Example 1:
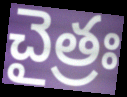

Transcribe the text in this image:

చైత్రః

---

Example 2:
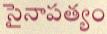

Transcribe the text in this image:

సైనాపత్యం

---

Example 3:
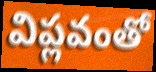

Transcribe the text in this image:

విప్లవంతో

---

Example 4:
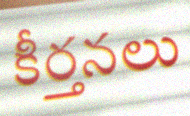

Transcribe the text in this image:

కీర్తనలు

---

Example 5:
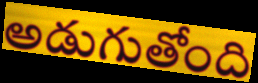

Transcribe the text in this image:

అడుగుతోంది